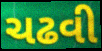
ચઢવી